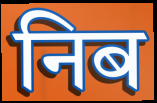
निब